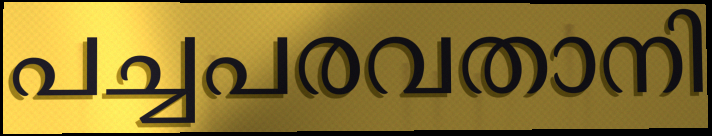
പച്ചപരവതാനി